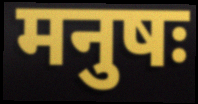
मनुषः